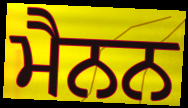
ਮੈਨਨ